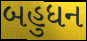
બહુધન